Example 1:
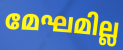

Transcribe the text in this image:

മേഘമില്ല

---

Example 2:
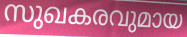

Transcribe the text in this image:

സുഖകരവുമായ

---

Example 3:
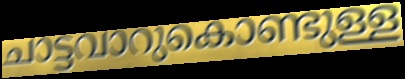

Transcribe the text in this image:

ചാട്ടവാറുകൊണ്ടുള്ള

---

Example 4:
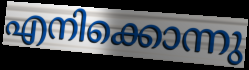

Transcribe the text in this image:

എനിക്കൊന്നു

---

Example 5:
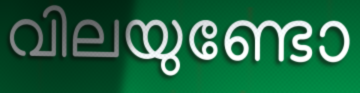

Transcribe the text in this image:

വിലയുണ്ടോ